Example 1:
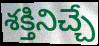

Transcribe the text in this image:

శక్తినిచ్చే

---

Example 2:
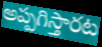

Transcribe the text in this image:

అప్పగిస్తారట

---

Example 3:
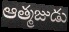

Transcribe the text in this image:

ఆత్మజుడు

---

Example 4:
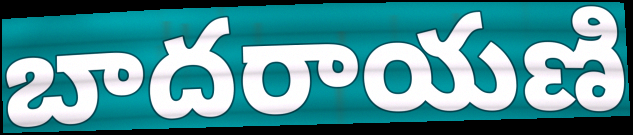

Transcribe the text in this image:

బాదరాయణి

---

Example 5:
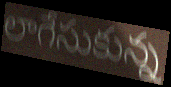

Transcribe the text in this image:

లాగేసుకున్న